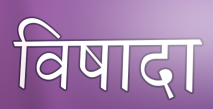
विषादा